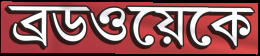
ব্রডওয়েকে